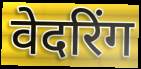
वेदरिंग